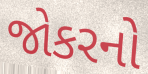
જોકરનો